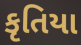
કૃતિયા